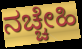
ನಚ್ಚೇಹಿ